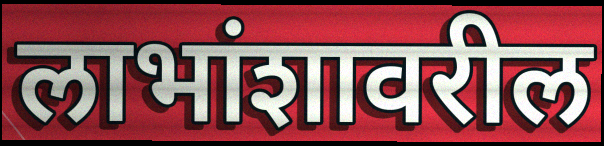
लाभांशावरील